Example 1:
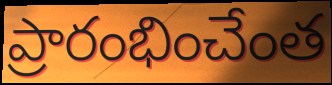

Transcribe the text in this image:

ప్రారంభించేంత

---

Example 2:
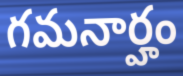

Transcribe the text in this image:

గమనార్హం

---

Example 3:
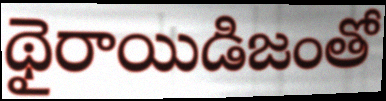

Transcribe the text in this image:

థైరాయిడిజంతో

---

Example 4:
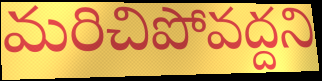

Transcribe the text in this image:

మరిచిపోవద్దని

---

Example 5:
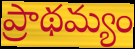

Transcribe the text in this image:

ప్రాథమ్యం